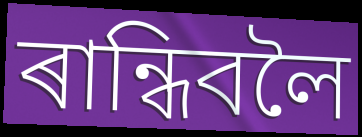
ৰান্ধিবলৈ